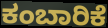
ಕಂಬಾರಿಕೆ